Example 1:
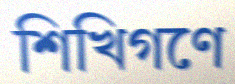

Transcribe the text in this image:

শিখিগণে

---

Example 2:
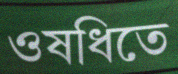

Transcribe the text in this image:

ওষধিতে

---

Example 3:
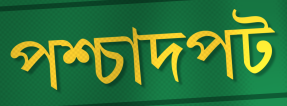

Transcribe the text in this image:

পশ্চাদপট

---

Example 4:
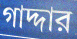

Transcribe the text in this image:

গাদ্দার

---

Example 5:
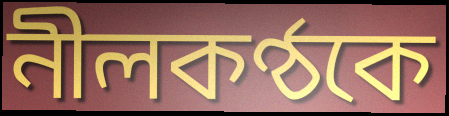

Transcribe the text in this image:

নীলকণ্ঠকে